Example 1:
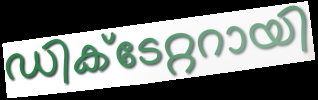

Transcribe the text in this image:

ഡിക്ടേറ്ററായി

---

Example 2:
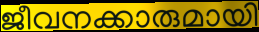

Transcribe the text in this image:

ജീവനക്കാരുമായി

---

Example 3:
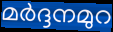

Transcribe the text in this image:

മർദ്ദനമുറ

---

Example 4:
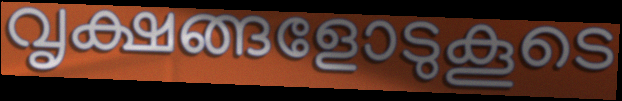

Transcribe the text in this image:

വൃക്ഷങ്ങളോടുകൂടെ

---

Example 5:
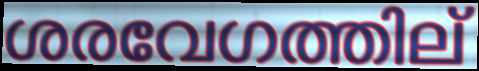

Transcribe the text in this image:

ശരവേഗത്തില്